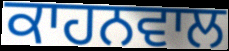
ਕਾਹਨਵਾਲ